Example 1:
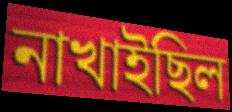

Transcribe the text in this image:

নাখাইছিল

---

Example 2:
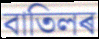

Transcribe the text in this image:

বাতিলৰ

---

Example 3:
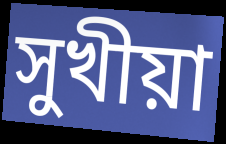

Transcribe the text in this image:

সুখীয়া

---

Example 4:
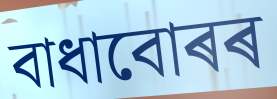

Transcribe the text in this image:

বাধাবোৰৰ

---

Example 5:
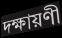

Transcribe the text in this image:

দক্ষায়ণী